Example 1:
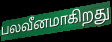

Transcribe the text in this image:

பலவீனமாகிறது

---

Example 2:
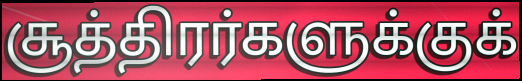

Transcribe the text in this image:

சூத்திரர்களுக்குக்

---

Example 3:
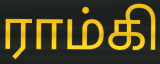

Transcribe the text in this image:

ராம்கி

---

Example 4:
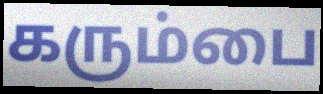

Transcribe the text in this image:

கரும்பை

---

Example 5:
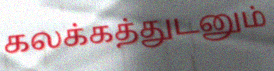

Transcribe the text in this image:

கலக்கத்துடனும்